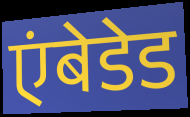
एंबेडेड